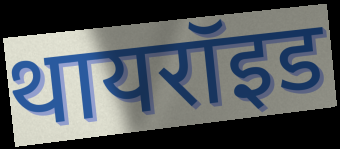
थायरॉइड